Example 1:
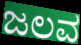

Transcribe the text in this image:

ಜಲವ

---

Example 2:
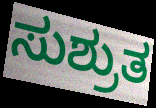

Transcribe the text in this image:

ಸುಶ್ರುತ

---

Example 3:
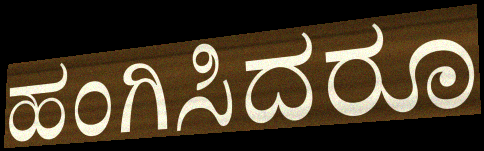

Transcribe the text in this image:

ಹಂಗಿಸಿದರೂ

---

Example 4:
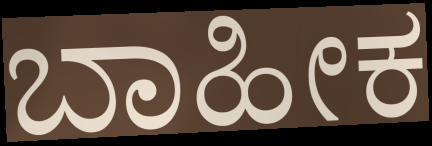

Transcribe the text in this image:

ಬಾಹೀಕ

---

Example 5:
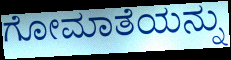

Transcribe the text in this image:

ಗೋಮಾತೆಯನ್ನು